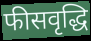
फीसवृद्धि